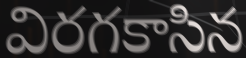
విరగకాసిన